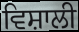
ਵਿਸ਼ਾਲੀ